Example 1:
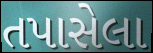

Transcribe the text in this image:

તપાસેલા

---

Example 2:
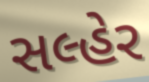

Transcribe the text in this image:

સલ્હેર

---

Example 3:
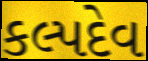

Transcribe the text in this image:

કલ્પદેવ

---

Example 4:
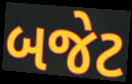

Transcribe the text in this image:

બજેટ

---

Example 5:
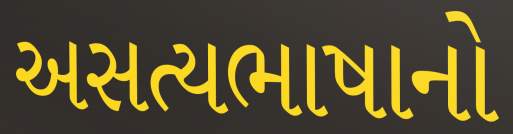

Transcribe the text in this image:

અસત્યભાષાનો